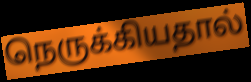
நெருக்கியதால்